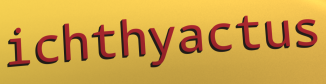
ichthyactus